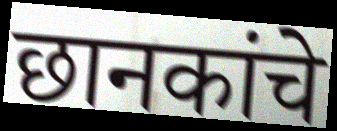
छानकांचे